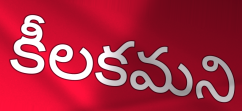
కీలకమని